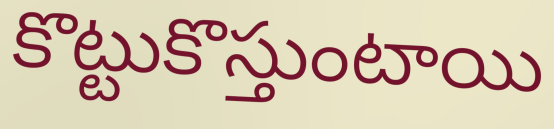
కొట్టుకొస్తుంటాయి